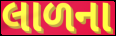
લાળના